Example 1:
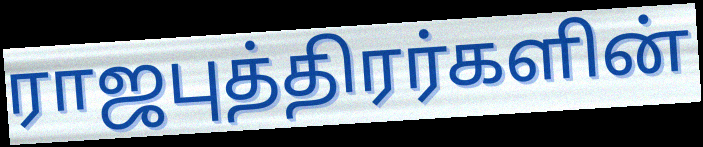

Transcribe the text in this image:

ராஜபுத்திரர்களின்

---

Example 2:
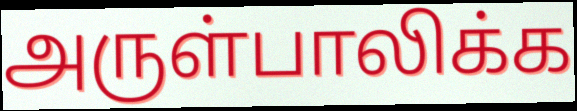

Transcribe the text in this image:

அருள்பாலிக்க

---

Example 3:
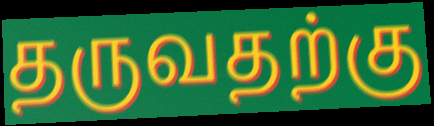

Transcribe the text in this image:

தருவதற்கு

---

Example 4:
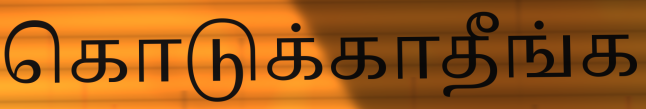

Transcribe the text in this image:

கொடுக்காதீங்க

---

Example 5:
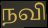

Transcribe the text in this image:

நவி